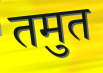
तमुत